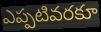
ఎప్పటివరకూ